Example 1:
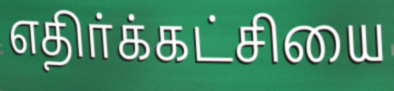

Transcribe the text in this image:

எதிர்க்கட்சியை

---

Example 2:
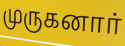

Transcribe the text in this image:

முருகனார்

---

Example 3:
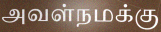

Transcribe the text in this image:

அவள்நமக்கு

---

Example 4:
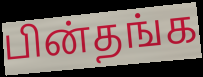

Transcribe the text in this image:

பின்தங்க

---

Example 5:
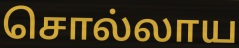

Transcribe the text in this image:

சொல்லாய